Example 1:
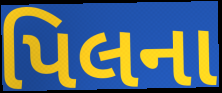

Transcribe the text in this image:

પિલના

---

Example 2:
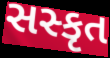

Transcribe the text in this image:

સસ્કૃત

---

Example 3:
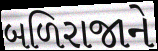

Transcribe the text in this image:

બળિરાજાને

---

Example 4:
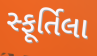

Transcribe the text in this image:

સ્ફૂર્તિલા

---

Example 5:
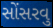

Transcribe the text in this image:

સોંસરવુ